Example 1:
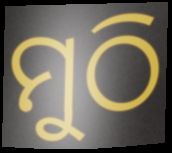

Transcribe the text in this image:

ମୁଠି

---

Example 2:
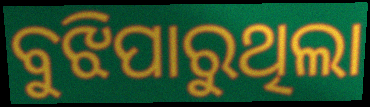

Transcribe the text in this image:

ବୁଝିପାରୁଥିଲା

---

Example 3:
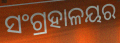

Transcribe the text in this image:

ସଂଗ୍ରହାଳୟର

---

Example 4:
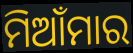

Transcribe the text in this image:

ମିଆଁମାର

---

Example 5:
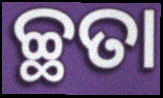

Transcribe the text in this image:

ଚ୍ଛତା